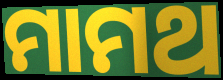
ମାମଥ